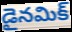
డైనమిక్